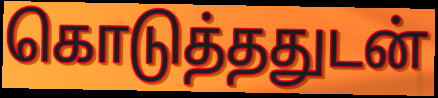
கொடுத்ததுடன்